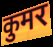
कुमर